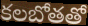
కలబోతతో